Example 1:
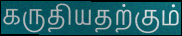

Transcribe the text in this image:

கருதியதற்கும்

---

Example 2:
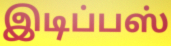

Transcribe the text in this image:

இடிப்பஸ்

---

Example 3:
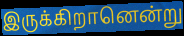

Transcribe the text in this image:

இருக்கிறானென்று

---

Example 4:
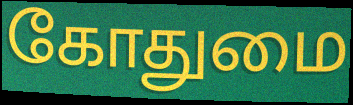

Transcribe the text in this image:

கோதுமை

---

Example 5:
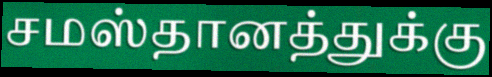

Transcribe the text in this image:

சமஸ்தானத்துக்கு